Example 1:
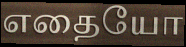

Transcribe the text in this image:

எதையோ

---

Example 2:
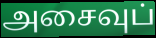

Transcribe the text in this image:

அசைவுப்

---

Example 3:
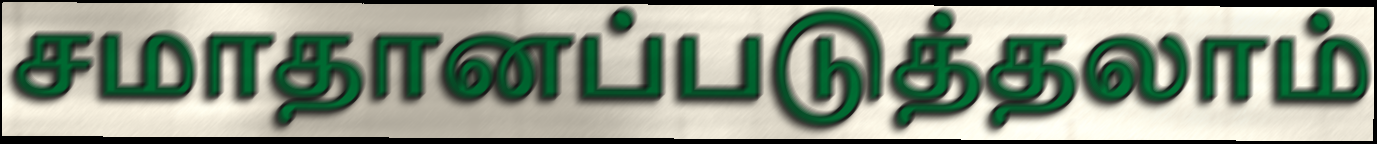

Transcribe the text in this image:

சமாதானப்படுத்தலாம்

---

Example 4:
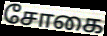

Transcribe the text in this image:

சோகை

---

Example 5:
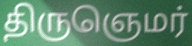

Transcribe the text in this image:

திருஞெமர்